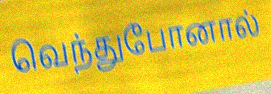
வெந்துபோனால்